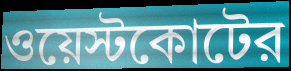
ওয়েস্টকোটের